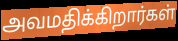
அவமதிக்கிறார்கள்